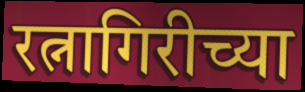
रत्नागिरीच्या